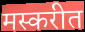
मस्करीत